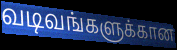
வடிவங்களுக்கான